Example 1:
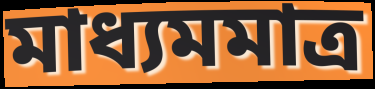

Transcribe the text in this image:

মাধ্যমমাত্র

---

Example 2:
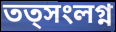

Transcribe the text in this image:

তত্সংলগ্ন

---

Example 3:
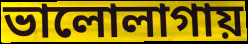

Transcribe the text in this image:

ভালোলাগায়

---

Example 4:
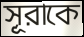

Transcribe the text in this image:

সূরাকে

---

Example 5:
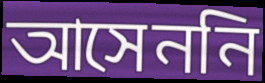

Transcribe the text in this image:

আসেননি